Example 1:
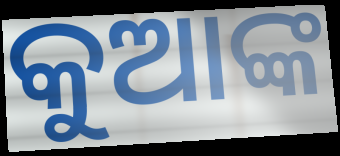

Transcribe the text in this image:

କୁଆଙ୍କ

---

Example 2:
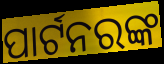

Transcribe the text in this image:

ପାର୍ଟନରଙ୍କ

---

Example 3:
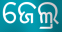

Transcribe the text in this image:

ଜେଲ୍ର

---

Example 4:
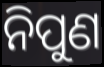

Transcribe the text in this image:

ନିପୁଣ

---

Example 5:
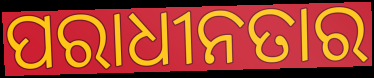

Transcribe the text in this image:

ପରାଧୀନତାର